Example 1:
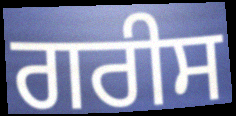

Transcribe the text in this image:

ਗਰੀਸ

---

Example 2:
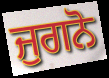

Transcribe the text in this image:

ਜੁਗਨੋ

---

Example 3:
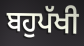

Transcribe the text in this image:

ਬਹੁਪੱਖੀ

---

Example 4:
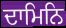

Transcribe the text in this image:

ਦਾਮਿਨਿ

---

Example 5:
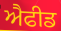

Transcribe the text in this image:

ਐਫੀਡ